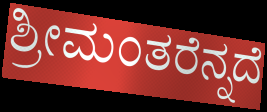
ಶ್ರೀಮಂತರೆನ್ನದೆ